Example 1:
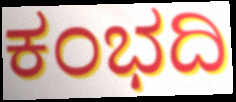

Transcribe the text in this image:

ಕಂಭದಿ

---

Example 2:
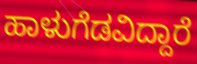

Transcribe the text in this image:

ಹಾಳುಗೆಡವಿದ್ದಾರೆ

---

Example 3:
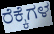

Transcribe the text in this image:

ರೆಕ್ಕೆಗಳ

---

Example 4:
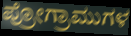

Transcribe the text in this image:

ಪ್ರೋಗ್ರಾಮುಗಳ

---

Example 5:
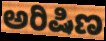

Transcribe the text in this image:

ಅರಿಷಿಣ